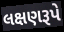
લક્ષણરૂપે